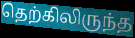
தெற்கிலிருந்த